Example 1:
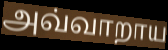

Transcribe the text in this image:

அவ்வாறாய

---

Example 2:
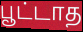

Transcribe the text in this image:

பூட்டாத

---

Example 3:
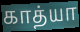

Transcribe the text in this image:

காத்யா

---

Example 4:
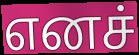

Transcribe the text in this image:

எனச்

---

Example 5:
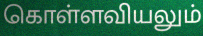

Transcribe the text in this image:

கொள்ளவியலும்